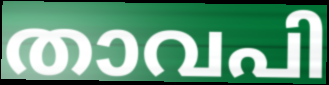
താവപി